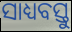
ସାଧ୍ୟବସ୍ତୁ